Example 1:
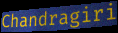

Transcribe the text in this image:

Chandragiri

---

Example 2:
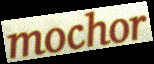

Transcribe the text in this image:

mochor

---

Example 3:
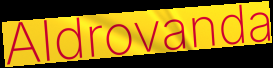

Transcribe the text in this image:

Aldrovanda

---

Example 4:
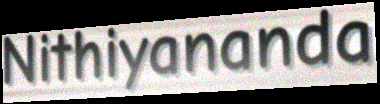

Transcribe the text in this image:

Nithiyananda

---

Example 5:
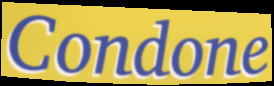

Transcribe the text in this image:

Condone